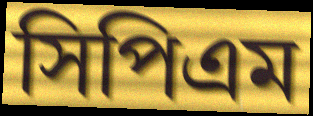
সিপিএম